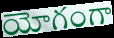
యోగంగా